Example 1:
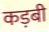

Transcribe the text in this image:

कड़बी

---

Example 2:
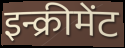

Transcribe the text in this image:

इन्क्रीमेंट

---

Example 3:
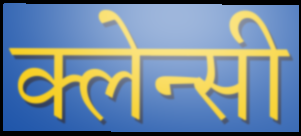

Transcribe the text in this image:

क्लेन्सी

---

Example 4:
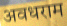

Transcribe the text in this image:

अवधराम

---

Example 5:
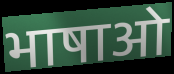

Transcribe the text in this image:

भाषाओ